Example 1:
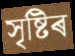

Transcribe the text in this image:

সৃষ্টিৰ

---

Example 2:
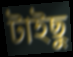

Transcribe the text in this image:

টাইছু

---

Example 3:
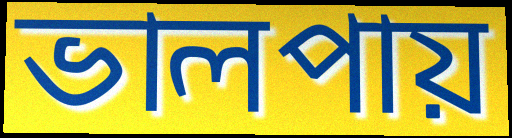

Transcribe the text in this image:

ভালপায়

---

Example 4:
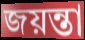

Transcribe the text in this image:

জয়ন্তা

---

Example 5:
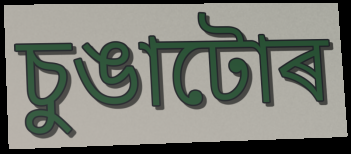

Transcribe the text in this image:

চুঙাটোৰ